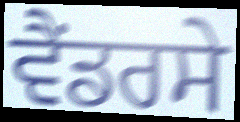
ਵੈਂਡਰਸੇ